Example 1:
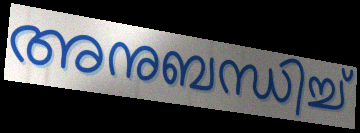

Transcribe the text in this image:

അനുബന്ധിച്ച്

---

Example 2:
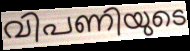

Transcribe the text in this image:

വിപണിയുടെ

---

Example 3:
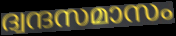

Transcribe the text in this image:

ദ്വന്ദസമാസം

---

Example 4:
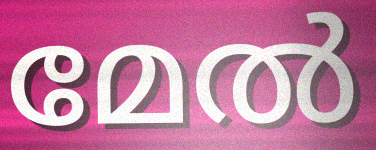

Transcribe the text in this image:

മേൽ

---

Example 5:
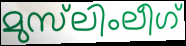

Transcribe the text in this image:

മുസ്‌ലിംലീഗ്